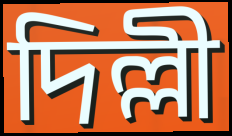
দিল্লী